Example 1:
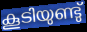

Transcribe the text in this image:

കൂടിയുണ്ടു്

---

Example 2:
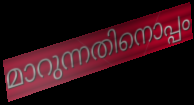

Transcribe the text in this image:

മാറുന്നതിനൊപ്പം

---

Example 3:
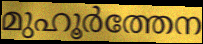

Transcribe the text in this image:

മുഹൂർത്തേന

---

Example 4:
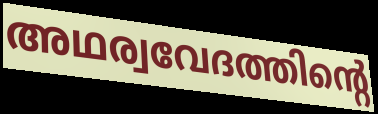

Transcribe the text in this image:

അഥര്വവേദത്തിന്റെ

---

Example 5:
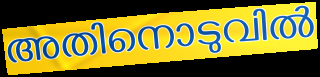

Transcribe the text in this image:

അതിനൊടുവിൽ